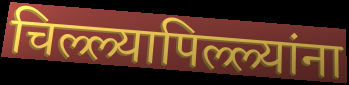
चिल्ल्यापिल्ल्यांना